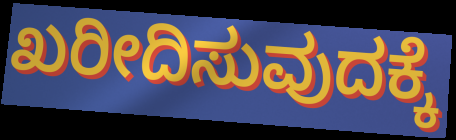
ಖರೀದಿಸುವುದಕ್ಕೆ